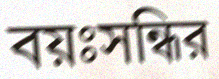
বয়ঃসন্ধির